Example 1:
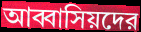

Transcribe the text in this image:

আব্বাসিয়দের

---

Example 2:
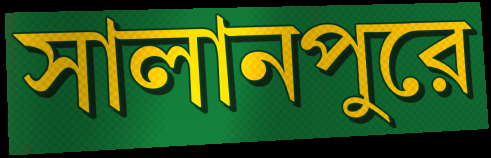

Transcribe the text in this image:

সালানপুরে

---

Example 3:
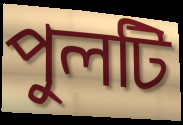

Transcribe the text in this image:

পুলটি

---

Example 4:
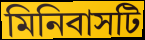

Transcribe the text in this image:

মিনিবাসটি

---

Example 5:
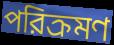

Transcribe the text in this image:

পরিক্রমণ